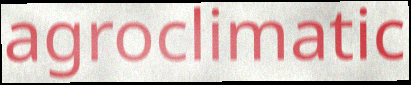
agroclimatic